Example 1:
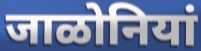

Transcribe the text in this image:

जाळोनियां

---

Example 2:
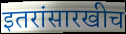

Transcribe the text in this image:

इतरांसारखीच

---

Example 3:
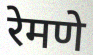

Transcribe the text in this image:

रेमणे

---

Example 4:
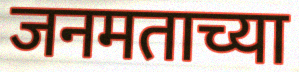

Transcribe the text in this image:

जनमताच्या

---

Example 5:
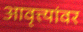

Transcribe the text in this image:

आवृत्त्यांवर